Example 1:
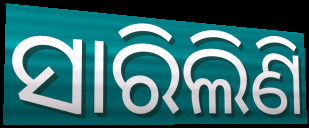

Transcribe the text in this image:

ସାରିଲିଣି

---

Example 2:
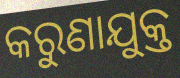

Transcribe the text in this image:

କରୁଣାଯୁକ୍ତ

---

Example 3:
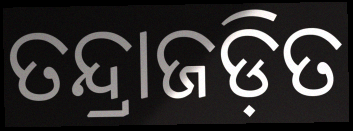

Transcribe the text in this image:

ତନ୍ଦ୍ରାଜଡ଼ିତ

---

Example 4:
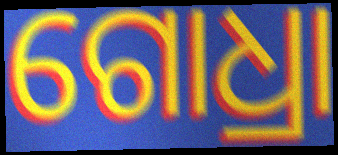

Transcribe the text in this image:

ଗୋଧ୍ରା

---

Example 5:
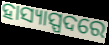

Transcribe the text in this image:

ହାସ୍ୟାସ୍ପଦରେ